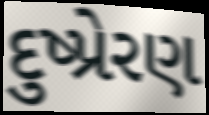
દુષ્પ્રેરણ